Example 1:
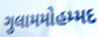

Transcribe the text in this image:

ગુલામમોહમ્મદ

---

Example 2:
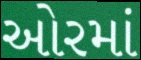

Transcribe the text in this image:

ઓરમાં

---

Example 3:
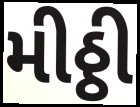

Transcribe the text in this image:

મીઠ્ઠી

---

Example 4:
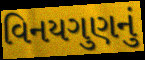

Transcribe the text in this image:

વિનયગુણનું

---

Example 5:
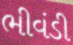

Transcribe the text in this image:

ભીવંડી